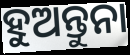
ହୁଅନ୍ତୁନା